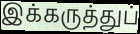
இக்கருத்துப்